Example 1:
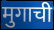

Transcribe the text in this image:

मुगाची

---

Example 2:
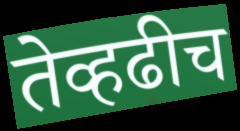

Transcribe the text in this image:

तेव्हढीच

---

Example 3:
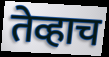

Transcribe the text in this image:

तेव्हाच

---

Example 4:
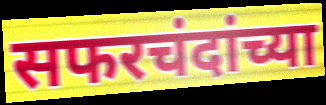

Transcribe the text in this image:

सफरचंदांच्या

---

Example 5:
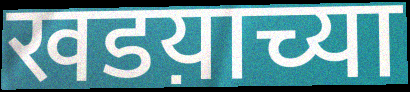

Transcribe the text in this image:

खडय़ाच्या